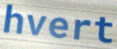
hvert